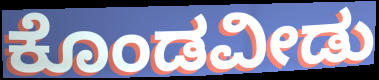
ಕೊಂಡವೀಡು